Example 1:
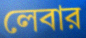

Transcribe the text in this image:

লেবার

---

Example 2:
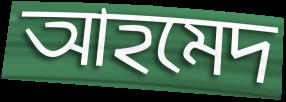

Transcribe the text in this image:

আহমেদ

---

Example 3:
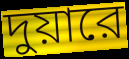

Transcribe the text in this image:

দুয়ারে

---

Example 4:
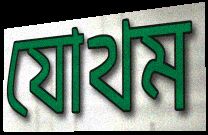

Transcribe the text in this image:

যোথম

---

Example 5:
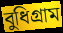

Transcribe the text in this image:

বুধিগ্রাম